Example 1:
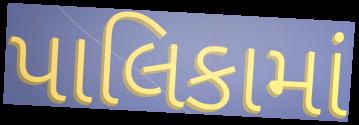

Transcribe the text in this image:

પાલિકામાં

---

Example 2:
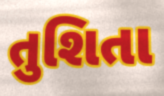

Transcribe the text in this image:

તુશિતા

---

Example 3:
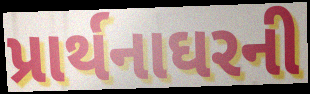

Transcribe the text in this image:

પ્રાર્થનાઘરની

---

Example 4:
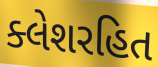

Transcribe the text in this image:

ક્લેશરહિત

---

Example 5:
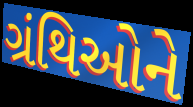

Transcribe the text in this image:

ગ્રંથિઓને